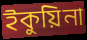
ইকুয়িনা